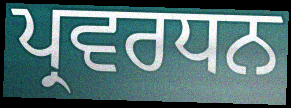
ਪ੍ਰਵਰਧਨ